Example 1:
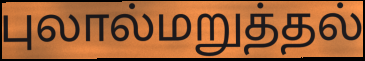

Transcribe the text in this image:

புலால்மறுத்தல்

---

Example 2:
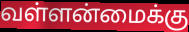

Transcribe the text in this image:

வள்ளன்மைக்கு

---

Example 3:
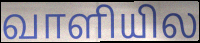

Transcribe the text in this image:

வாளியில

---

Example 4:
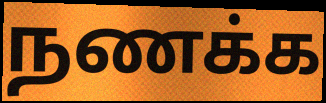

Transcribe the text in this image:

நணக்க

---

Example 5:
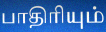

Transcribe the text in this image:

பாதிரியும்